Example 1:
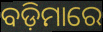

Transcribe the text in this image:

ବଡ଼ିମାରେ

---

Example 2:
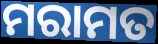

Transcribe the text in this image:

ମରାମତ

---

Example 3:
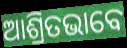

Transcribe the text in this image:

ଆଶ୍ରିତଭାବେ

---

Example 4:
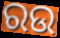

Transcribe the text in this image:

ରଉ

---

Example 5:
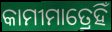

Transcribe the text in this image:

କାମୀମାତ୍ରେହିଁ